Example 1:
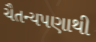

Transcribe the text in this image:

ચૈતન્યપણાથી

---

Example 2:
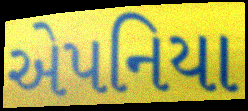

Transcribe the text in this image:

એપનિયા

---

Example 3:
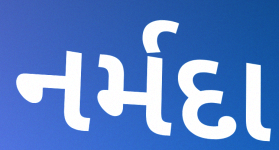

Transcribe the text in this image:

નર્મદા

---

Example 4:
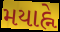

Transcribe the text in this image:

મયાહ્ને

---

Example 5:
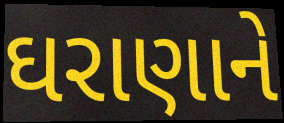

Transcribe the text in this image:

ઘરાણાને